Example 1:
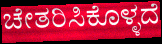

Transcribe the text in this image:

ಚೇತರಿಸಿಕೊಳ್ಳದೆ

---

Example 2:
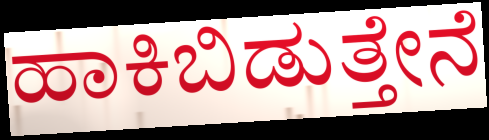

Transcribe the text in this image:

ಹಾಕಿಬಿಡುತ್ತೇನೆ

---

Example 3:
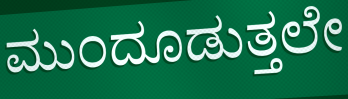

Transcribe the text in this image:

ಮುಂದೂಡುತ್ತಲೇ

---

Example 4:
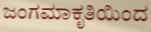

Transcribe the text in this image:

ಜಂಗಮಾಕೃತಿಯಿಂದ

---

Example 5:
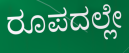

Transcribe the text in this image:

ರೂಪದಲ್ಲೇ